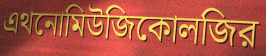
এথনোমিউজিকোলজির